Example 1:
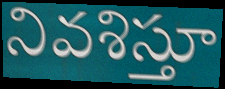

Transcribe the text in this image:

నివశిస్తూ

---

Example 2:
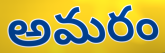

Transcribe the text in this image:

అమరం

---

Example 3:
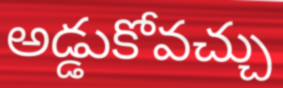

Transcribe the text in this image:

అడ్డుకోవచ్చు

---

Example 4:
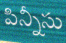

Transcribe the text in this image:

పిన్నీసు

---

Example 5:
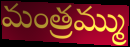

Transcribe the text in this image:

మంత్రమ్ము